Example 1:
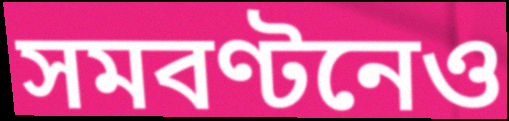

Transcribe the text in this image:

সমবণ্টনেও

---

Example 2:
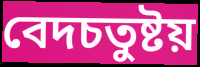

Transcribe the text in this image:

বেদচতুষ্টয়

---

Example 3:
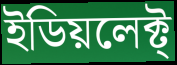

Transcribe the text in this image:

ইডিয়লেক্ট্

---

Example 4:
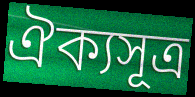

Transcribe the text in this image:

ঐক্যসূত্র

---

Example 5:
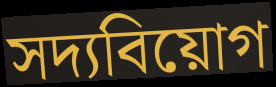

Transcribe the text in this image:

সদ্যবিয়োগ